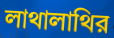
লাথালাথির